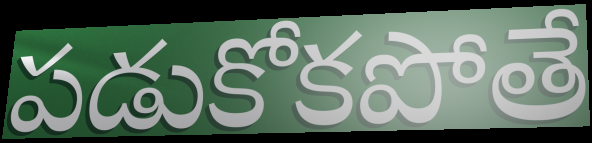
పడుకోకపోతే